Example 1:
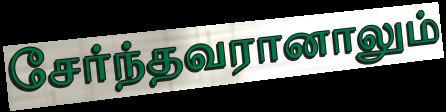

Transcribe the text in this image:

சேர்ந்தவரானாலும்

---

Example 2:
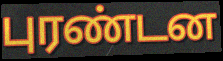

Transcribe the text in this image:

புரண்டன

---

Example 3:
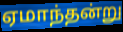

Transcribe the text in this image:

ஏமாந்தன்று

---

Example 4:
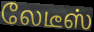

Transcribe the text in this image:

லேடீஸ்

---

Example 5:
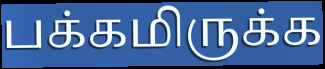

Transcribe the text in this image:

பக்கமிருக்க